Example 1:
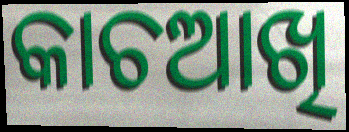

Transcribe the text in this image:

କାଚଆଖି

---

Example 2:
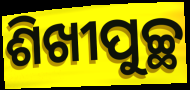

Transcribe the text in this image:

ଶିଖୀପୁଚ୍ଛ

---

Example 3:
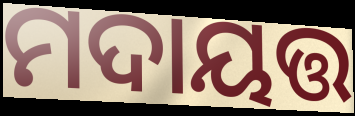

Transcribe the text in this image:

ମଦାୟତ୍ତ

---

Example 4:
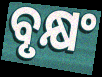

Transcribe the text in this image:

ବୃକ୍ଷଂ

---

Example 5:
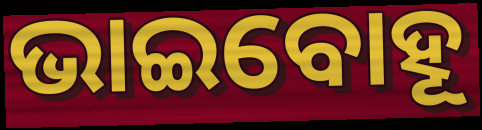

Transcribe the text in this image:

ଭାଇବୋହୂ